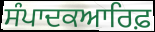
ਸੰਪਾਦਕਆਰਿਫ਼